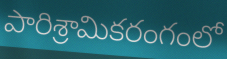
పారిశ్రామికరంగంలో